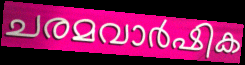
ചരമവാർഷിക